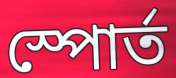
স্পোর্ত